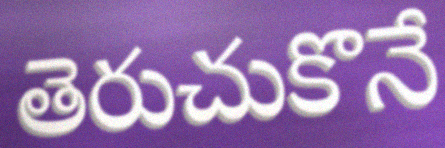
తెరుచుకొనే